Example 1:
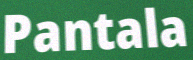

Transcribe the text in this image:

Pantala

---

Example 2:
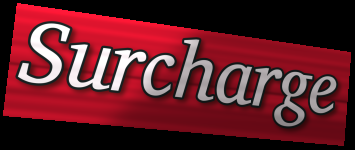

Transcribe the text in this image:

Surcharge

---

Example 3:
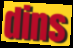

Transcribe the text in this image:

dins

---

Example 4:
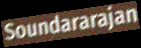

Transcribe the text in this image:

Soundararajan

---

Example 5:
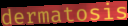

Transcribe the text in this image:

dermatosis